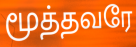
மூத்தவரே